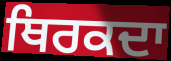
ਥਿਰਕਦਾ